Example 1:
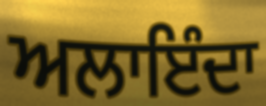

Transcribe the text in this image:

ਅਲਾਇੰਦਾ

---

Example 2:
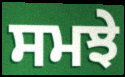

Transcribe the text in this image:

ਸਮਝੇ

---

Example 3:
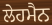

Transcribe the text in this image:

ਲੇਹਮੈਨ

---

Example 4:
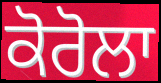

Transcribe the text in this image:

ਕੋਰੋਲਾ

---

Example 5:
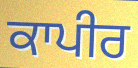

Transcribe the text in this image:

ਕਾਪੀਰ